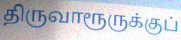
திருவாரூருக்குப்